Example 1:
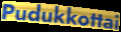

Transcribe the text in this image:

Pudukkottai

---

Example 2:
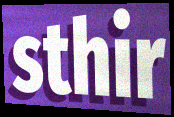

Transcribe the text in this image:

sthir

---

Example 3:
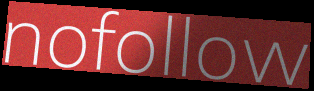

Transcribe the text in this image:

nofollow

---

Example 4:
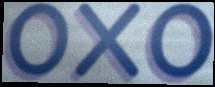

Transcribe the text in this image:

OXO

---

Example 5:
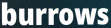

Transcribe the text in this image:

burrows